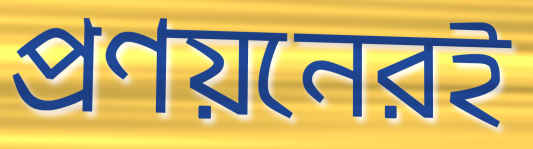
প্রণয়নেরই